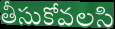
తీసుకోవలసి